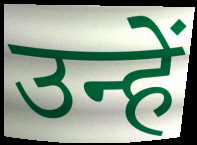
उन्हें